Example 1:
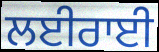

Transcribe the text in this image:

ਲਈਰਾਈ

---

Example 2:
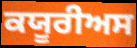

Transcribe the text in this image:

ਕਯੂਰੀਅਸ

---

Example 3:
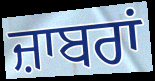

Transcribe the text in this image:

ਜ਼ਾਬਰਾਂ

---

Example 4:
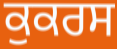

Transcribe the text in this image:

ਕੁਕਰਸ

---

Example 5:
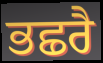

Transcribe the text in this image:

ਭਛਰੈ